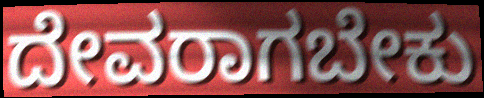
ದೇವರಾಗಬೇಕು